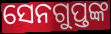
ସେନଗୁପ୍ତଙ୍କ